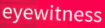
eyewitness